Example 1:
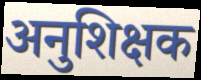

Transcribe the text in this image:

अनुशिक्षक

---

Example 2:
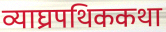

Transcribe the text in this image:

व्याघ्रपथिककथा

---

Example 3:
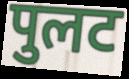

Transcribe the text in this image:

पुलट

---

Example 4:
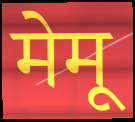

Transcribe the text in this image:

मेमू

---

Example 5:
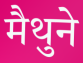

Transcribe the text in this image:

मैथुने